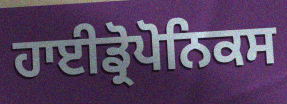
ਹਾਈਡ੍ਰੋਪੋਨਿਕਸ